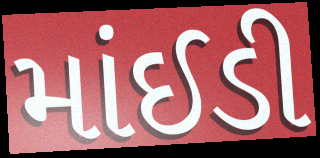
માંઈડી